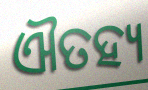
ଐତହ୍ୟ